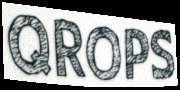
QROPS